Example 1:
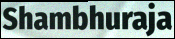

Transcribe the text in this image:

Shambhuraja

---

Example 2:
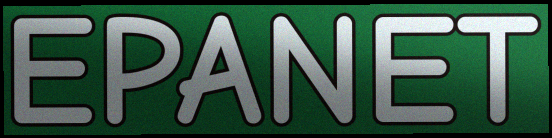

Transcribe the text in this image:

EPANET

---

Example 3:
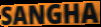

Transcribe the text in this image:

SANGHA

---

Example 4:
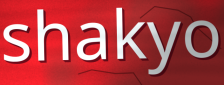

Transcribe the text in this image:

shakyo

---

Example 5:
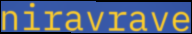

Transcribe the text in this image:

niravrave